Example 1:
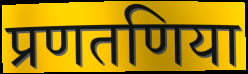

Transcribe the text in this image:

प्रणतणिया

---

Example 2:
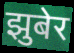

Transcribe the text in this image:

झुबेर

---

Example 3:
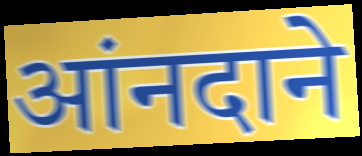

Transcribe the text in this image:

आंनदाने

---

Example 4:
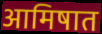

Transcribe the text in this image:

आमिषात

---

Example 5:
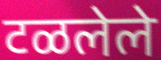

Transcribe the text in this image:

टळलेले